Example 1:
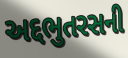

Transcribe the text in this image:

અદ્દભુતરસની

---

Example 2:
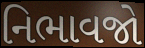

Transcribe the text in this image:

નિભાવજો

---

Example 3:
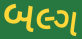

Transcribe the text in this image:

બલ્ગ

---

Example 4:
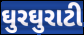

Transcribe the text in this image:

ઘુરઘુરાટી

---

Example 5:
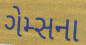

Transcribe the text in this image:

ગેમ્સના